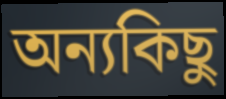
অন্যকিছু